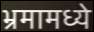
भ्रमामध्ये